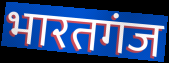
भारतगंज